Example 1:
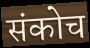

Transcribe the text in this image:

संकोच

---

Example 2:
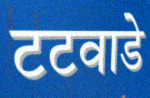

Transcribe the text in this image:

टटवाडे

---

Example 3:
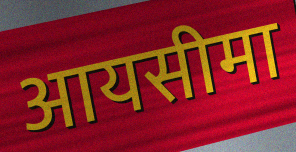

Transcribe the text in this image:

आयसीमा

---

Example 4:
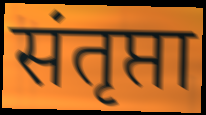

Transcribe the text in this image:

संतृप्ता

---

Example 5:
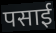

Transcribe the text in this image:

पसाई